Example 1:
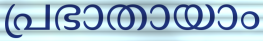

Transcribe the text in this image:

പ്രഭാതായാം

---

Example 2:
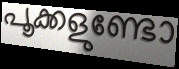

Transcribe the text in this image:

പൂക്കളുണ്ടോ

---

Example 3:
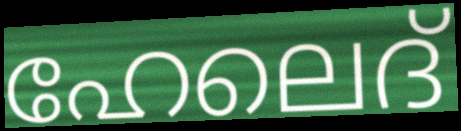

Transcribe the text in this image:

ഹേലെദ്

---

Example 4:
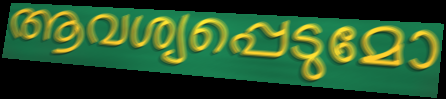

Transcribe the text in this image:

ആവശ്യപ്പെടുമോ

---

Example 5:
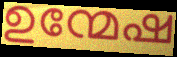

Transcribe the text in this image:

ഉന്മേഷ